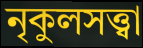
নৃকুলসত্ত্বা